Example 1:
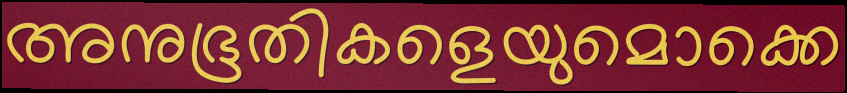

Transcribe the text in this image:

അനുഭൂതികളെയുമൊക്കെ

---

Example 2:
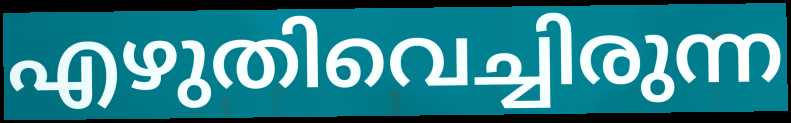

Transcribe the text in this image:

എഴുതിവെച്ചിരുന്ന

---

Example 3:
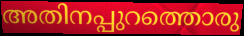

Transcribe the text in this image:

അതിനപ്പുറത്തൊരു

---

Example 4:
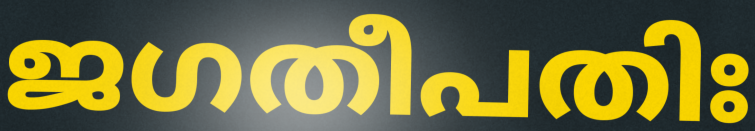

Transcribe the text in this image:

ജഗതീപതിഃ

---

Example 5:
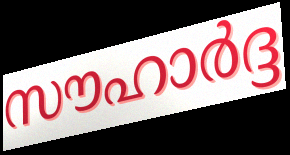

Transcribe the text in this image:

സൗഹാർദ്ദ